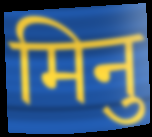
मिनु